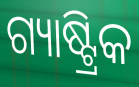
ଗ୍ୟାଷ୍ଟ୍ରିକ